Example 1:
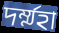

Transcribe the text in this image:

দৰ্ম্মহা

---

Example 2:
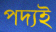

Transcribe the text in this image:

পদ্যই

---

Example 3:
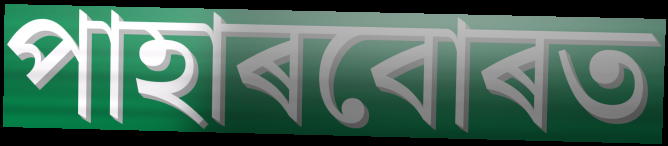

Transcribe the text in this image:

পাহাৰবোৰত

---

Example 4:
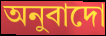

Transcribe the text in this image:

অনুবাদো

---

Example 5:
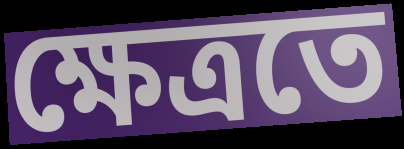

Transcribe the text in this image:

ক্ষেত্ৰতে